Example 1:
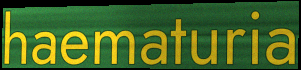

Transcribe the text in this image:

haematuria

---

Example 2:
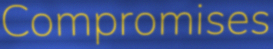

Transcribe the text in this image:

Compromises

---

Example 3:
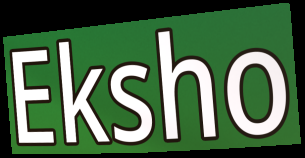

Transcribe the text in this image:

Eksho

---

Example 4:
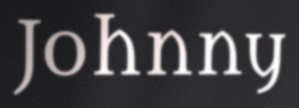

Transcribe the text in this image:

Johnny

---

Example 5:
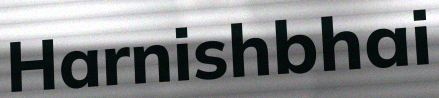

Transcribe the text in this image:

Harnishbhai